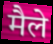
मैले